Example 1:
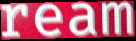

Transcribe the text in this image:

ream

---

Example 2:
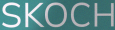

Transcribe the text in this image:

SKOCH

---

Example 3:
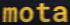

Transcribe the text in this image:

mota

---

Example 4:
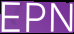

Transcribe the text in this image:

EPN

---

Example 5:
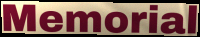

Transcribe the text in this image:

Memorial